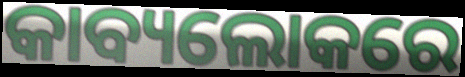
କାବ୍ୟଲୋକରେ